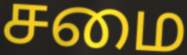
சமை